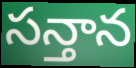
సన్తాన